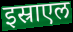
इस्राएल